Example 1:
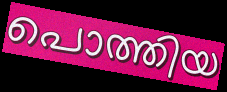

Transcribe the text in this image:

പൊത്തിയ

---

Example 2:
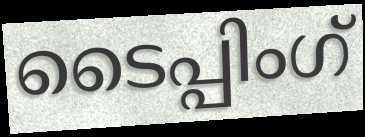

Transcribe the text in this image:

ടൈപ്പിംഗ്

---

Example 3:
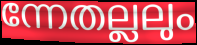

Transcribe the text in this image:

ന്നേതല്ലലും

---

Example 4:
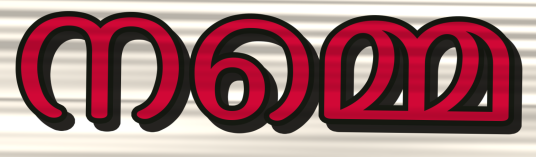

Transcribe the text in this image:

നമ്മെ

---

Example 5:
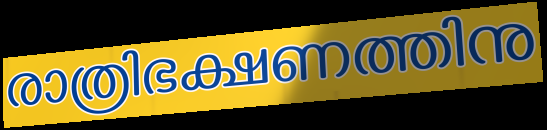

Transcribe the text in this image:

രാത്രിഭക്ഷണത്തിനു